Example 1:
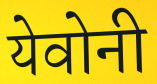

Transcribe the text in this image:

येवोनी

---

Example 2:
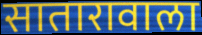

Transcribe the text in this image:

सातारावाला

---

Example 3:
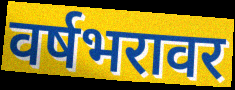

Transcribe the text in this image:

वर्षभरावर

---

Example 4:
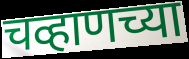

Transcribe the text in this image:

चव्हाणच्या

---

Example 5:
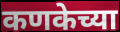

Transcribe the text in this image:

कणकेच्या